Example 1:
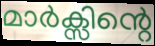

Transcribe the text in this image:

മാർക്സിന്റെ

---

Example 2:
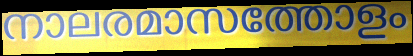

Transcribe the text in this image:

നാലരമാസത്തോളം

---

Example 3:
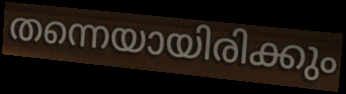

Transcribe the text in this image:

തന്നെയായിരിക്കും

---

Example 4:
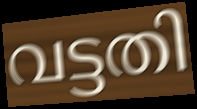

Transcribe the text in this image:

വട്ടതി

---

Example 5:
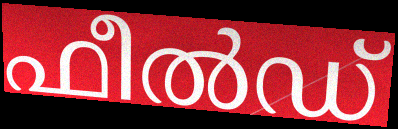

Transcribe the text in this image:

ഫീൽഡ്